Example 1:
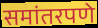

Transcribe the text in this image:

समांतरपणे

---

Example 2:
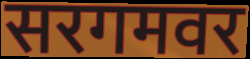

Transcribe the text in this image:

सरगमवर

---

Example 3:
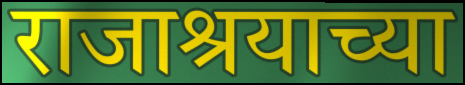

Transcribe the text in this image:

राजाश्रयाच्या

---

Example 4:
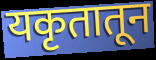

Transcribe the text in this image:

यकृतातून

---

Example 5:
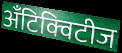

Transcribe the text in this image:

अँटिक्विटीज